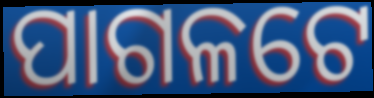
ପାଗଳଟେ